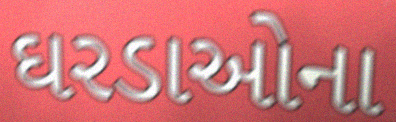
ઘરડાઓના